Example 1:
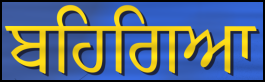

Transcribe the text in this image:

ਬਹਿਗਿਆ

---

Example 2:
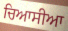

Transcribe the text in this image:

ਚਿਆਸੀਆ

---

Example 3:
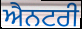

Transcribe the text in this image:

ਐਨਟਰੀ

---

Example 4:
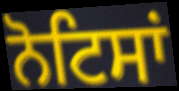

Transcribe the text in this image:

ਨੋਟਿਸਾਂ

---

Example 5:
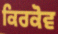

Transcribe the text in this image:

ਕਿਰਕੋਵ